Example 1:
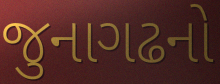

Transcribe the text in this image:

જુનાગઢનો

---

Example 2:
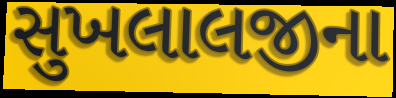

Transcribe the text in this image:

સુખલાલજીના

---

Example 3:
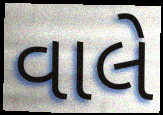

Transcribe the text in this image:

વાલે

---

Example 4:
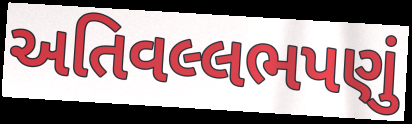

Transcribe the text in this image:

અતિવલ્લભપણું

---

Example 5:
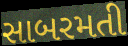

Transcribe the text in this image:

સાબરમતી